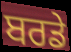
ਬਰਡੇ